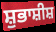
ਸ਼ੁਭਾਸ਼ੀਸ਼